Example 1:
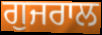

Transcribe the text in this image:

ਗੁਜਰਾਲ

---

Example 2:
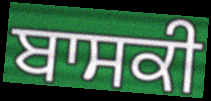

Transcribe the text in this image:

ਬਾਸਕੀ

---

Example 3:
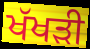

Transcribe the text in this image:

ਖੱਖੜੀ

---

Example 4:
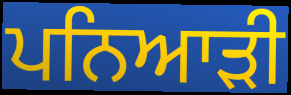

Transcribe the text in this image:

ਪਨਿਆੜੀ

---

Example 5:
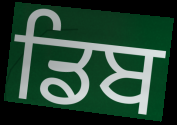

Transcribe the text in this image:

ਡਿਬ